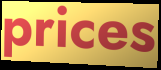
prices